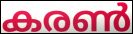
കരൺ